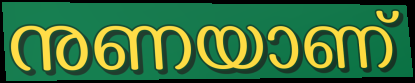
നുണയാണ്